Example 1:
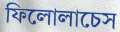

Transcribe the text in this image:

ফিলোলাচেস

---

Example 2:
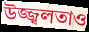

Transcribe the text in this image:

উজ্জ্বলতাও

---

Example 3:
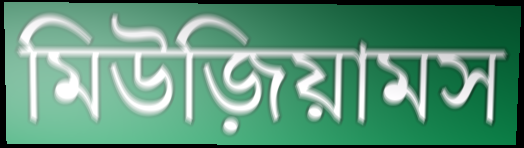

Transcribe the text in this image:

মিউজ়িয়ামস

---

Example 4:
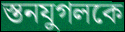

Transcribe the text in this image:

স্তনযুগলকে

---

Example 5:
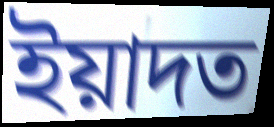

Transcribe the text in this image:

ইয়াদত